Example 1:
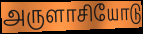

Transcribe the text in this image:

அருளாசியோடு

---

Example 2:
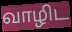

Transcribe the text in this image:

வாழிட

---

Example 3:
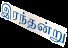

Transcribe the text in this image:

இரந்தன்று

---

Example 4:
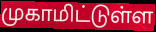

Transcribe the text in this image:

முகாமிட்டுள்ள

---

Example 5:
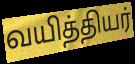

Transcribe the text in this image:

வயித்தியர்